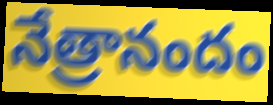
నేత్రానందం